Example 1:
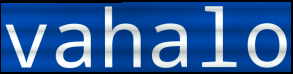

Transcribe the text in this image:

vahalo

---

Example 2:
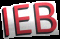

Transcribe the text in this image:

IEB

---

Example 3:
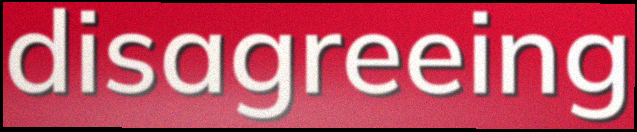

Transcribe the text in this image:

disagreeing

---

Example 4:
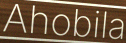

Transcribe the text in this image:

Ahobila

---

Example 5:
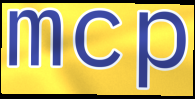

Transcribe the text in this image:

mcp